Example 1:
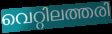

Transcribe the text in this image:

വെറ്റിലത്തരി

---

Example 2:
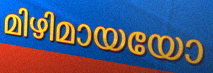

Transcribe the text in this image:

മിഴിമായയോ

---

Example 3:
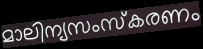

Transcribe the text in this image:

മാലിന്യസംസ്കരണം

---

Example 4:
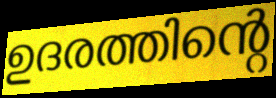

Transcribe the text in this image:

ഉദരത്തിന്റെ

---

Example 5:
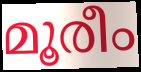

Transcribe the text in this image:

മൂരീം